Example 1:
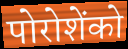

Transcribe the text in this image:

पोरोशेंको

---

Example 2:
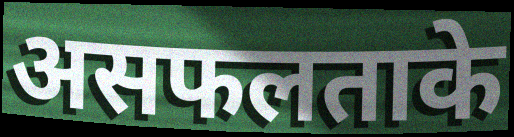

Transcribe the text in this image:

असफलताके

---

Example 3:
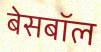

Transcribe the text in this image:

बेसबॉल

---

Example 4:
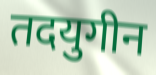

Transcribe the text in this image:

तदयुगीन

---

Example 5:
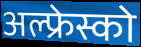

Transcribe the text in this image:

अल्फ्रेस्को